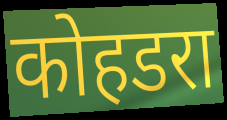
कोहडरा